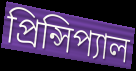
প্রিন্সিপ্যাল